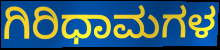
ಗಿರಿಧಾಮಗಳ